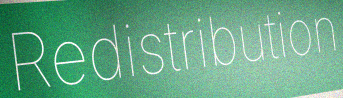
Redistribution